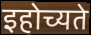
इहोच्यते